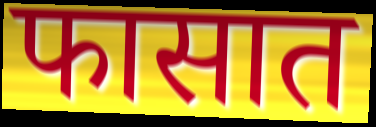
फासात